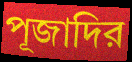
পূজাদির